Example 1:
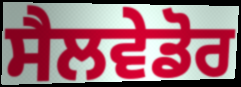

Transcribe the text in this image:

ਸੈਲਵੇਡੋਰ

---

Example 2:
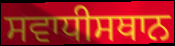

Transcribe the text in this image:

ਸਵਾਧੀਸਥਾਨ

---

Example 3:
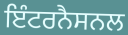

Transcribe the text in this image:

ਇੰਟਰਨੈਸਨਲ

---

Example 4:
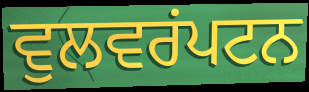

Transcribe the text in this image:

ਵੁਲਵਰਂਪਟਨ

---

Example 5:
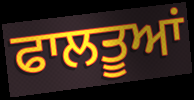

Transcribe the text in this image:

ਫਾਲਤੂਆਂ